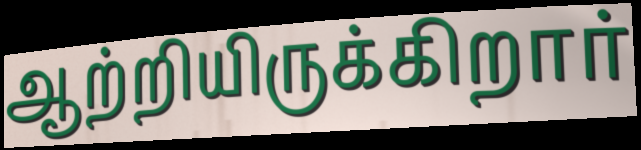
ஆற்றியிருக்கிறார்